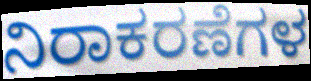
ನಿರಾಕರಣೆಗಳ